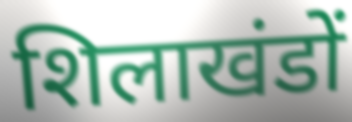
शिलाखंडों